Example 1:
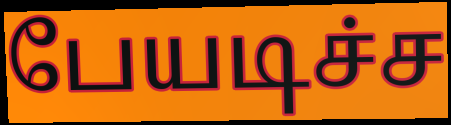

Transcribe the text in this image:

பேயடிச்ச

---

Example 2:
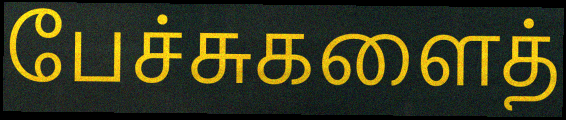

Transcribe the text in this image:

பேச்சுகளைத்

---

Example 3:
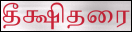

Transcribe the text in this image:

தீக்ஷிதரை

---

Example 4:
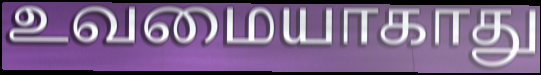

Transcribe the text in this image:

உவமையாகாது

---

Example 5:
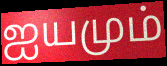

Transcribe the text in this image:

ஐயமும்